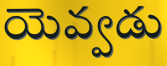
యెవ్వడు